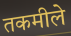
तकमीले